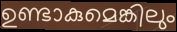
ഉണ്ടാകുമെങ്കിലും